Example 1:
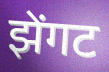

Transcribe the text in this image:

झेंगट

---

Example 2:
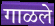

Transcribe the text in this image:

गाळले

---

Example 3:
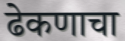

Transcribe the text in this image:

ढेकणाचा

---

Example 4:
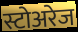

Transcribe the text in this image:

स्टोअरेज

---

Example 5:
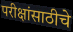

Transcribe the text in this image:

परीक्षांसाठीचे